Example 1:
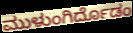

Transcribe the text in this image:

ಮುಳುಂಗಿರ್ದೊಡಂ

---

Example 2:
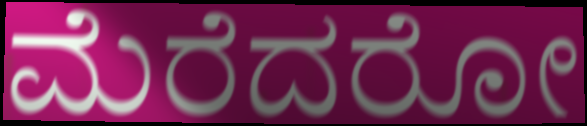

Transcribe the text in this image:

ಮೆರೆದರೋ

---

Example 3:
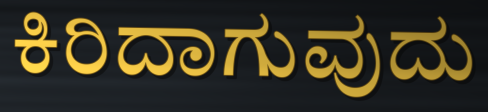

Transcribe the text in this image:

ಕಿರಿದಾಗುವುದು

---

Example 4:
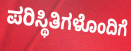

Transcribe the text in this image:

ಪರಿಸ್ಥಿತಿಗಳೊಂದಿಗೆ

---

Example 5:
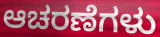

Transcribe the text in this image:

ಆಚರಣೆಗಳು